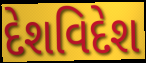
દેશવિદેશ